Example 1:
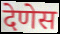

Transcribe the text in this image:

देणेस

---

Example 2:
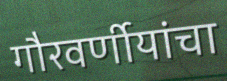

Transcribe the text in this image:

गौरवर्णीयांचा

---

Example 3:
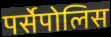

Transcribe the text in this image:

पर्सेपोलिस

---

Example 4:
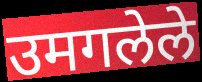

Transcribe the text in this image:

उमगलेले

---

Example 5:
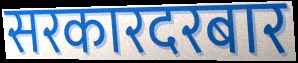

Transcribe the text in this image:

सरकारदरबार